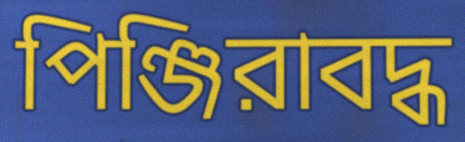
পিঞ্জিরাবদ্ধ